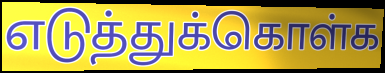
எடுத்துக்கொள்க